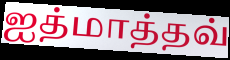
ஐத்மாத்தவ்